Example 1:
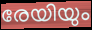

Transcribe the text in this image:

രേയിയും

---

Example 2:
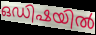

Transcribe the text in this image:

ഒഡിഷയിൽ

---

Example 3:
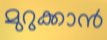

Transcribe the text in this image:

മുറുക്കാൻ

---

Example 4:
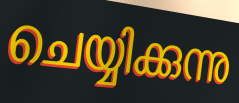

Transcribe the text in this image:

ചെയ്യിക്കുന്നു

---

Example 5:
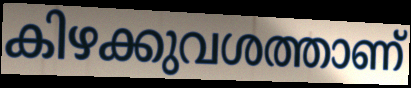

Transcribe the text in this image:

കിഴക്കുവശത്താണ്